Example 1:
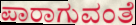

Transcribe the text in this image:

ಪಾರಾಗುವಂತೆ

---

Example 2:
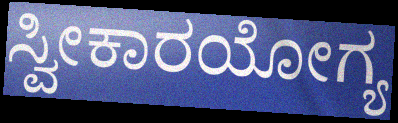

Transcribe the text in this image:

ಸ್ವೀಕಾರಯೋಗ್ಯ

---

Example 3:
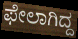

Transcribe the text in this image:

ಫೇಲಾಗಿದ್ದ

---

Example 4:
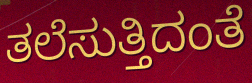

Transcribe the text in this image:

ತಲೆಸುತ್ತಿದಂತೆ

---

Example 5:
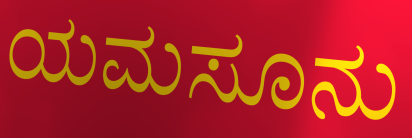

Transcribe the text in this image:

ಯಮಸೂನು